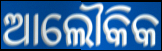
ଆଲୌକିକ